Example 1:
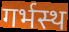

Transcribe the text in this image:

गर्भस्थ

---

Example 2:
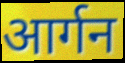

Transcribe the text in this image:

आर्गन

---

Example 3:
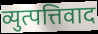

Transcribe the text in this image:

व्युत्पत्तिवाद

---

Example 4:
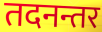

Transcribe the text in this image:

तदनन्तर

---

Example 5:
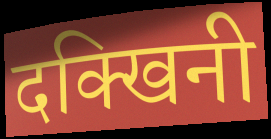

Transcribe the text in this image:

दक्खिनी